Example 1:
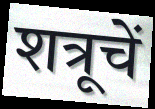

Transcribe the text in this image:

शत्रूचें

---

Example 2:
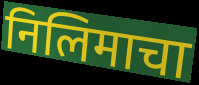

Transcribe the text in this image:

निलिमाचा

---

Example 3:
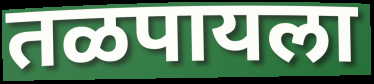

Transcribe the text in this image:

तळपायला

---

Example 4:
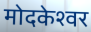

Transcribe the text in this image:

मोदकेश्वर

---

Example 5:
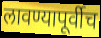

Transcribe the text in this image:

लावण्यापूर्वीच